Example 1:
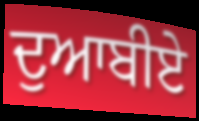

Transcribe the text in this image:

ਦੁਆਬੀਏ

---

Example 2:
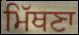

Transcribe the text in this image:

ਮਿੱਥਣਾ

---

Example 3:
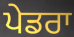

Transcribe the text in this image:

ਪੇਡਰਾ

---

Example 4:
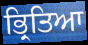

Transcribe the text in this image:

ਭ੍ਰਿਤਿਆ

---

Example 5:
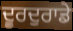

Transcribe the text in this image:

ਦੂਰਦੁਰਾਡੇ